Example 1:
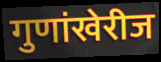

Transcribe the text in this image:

गुणांखेरीज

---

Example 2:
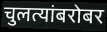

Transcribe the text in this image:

चुलत्यांबरोबर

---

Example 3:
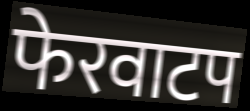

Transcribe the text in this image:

फेरवाटप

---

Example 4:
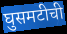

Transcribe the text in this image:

घुसमटीची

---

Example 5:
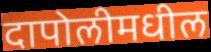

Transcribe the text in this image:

दापोलीमधील